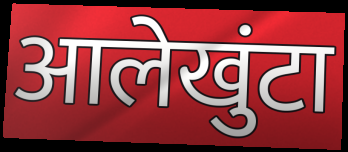
आलेखुंटा